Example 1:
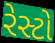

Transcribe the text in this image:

રેસ્ટો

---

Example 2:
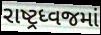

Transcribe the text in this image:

રાષ્ટ્રધ્વજમાં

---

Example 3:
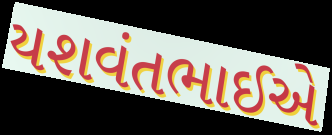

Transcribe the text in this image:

યશવંતભાઈએ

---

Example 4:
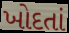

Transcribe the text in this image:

ખોદતાં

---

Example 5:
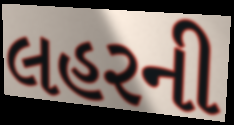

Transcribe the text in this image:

લહરની